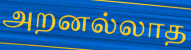
அறனல்லாத